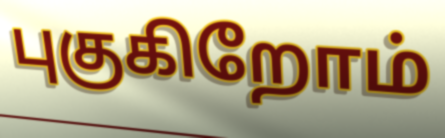
புகுகிறோம்